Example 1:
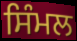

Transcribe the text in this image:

ਸਿੰਮਲ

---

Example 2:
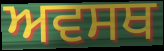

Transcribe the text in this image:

ਅਵਸਥ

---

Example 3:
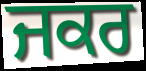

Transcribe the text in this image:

ਜਕਰ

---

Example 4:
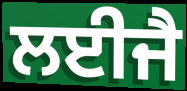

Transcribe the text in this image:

ਲਈਜੈ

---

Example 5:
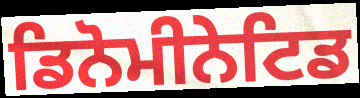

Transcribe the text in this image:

ਡਿਨੋਮੀਨੇਟਿਡ